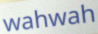
wahwah